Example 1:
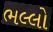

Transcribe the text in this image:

ભલ્લો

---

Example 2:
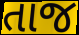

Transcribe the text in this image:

તાજ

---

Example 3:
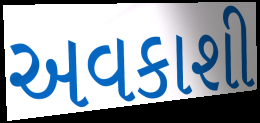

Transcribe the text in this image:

અવકાશી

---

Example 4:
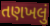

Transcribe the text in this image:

તણખલું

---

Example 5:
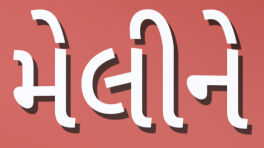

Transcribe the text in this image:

મેલીને